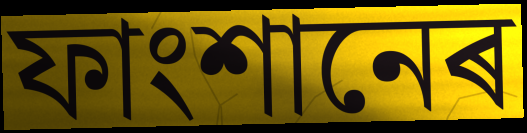
ফাংশানেৰ